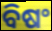
ବିଷଂ